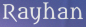
Rayhan